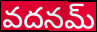
వదనమ్